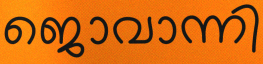
ജൊവാന്നി